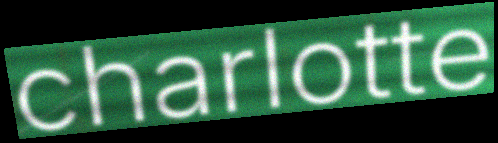
charlotte